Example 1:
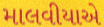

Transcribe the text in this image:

માલવીયાએ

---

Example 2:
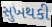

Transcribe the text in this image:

સુખથકી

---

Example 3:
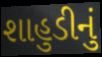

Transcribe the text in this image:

શાહુડીનું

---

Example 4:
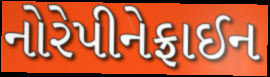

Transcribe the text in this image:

નોરેપીનેફ્રાઈન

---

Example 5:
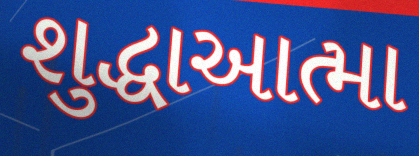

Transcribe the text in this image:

શુદ્ધાઆત્મા